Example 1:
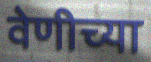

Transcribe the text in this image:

वेणीच्या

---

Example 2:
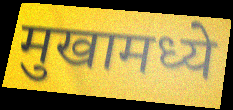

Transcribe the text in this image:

मुखामध्ये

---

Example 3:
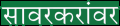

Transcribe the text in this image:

सावरकरांवर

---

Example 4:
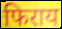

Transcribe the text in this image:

फिराय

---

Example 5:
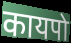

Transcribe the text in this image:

कायपो